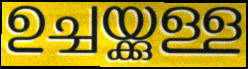
ഉച്ചയ്ക്കുള്ള